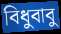
বিধুবাবু